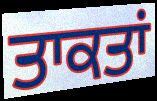
ਤਾਕਤਾਂ